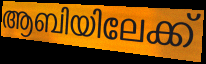
ആബിയിലേക്ക്